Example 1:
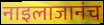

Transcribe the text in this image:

नाइलाजानंच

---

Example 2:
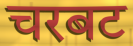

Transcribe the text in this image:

चरबट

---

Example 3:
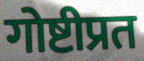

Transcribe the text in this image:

गोष्टीप्रत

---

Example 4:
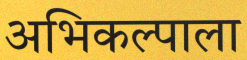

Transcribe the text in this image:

अभिकल्पाला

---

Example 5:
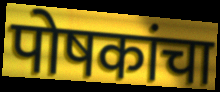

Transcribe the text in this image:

पोषकांचा